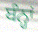
ਬੰਨ੍ਹਾਂ